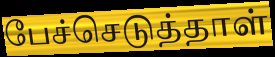
பேச்செடுத்தாள்